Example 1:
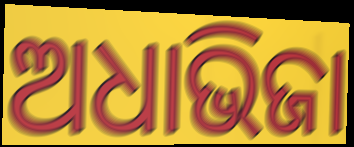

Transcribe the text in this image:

ଅଧାଭିଜା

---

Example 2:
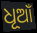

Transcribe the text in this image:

ଧୂଆଁ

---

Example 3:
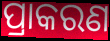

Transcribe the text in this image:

ପ୍ରାକରଣ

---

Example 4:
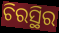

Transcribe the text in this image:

ଚିରସ୍ଥିର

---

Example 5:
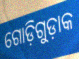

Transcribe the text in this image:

ଗୋଡ଼ିଗୁଡ଼ାକ